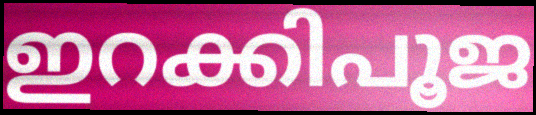
ഇറക്കിപൂജ